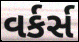
વર્કર્સ